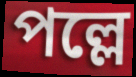
পল্লে